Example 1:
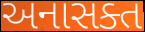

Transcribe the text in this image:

અનાસક્ત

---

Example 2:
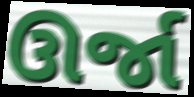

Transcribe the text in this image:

ઊર્જા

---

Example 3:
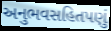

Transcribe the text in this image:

અનુભવસહિતપણું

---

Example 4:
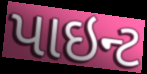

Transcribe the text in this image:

પાઇન્ટ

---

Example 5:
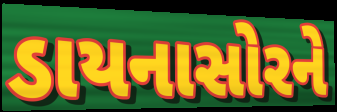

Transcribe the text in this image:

ડાયનાસોરને